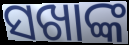
ସଖାଙ୍କ